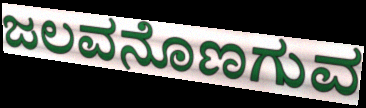
ಜಲವನೊಣಗುವ